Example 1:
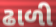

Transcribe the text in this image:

ઢાળી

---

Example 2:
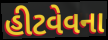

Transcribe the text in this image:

હીટવેવના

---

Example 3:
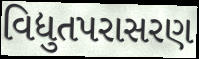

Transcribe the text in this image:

વિદ્યુતપરાસરણ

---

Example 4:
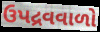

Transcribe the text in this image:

ઉપદ્રવવાળો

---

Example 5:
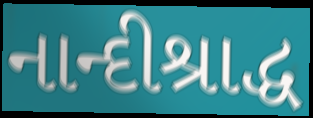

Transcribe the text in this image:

નાન્દીશ્રાદ્ધ